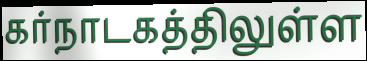
கர்நாடகத்திலுள்ள